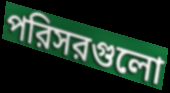
পরিসরগুলো